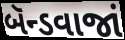
બૅન્ડવાજાં